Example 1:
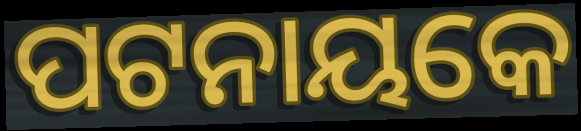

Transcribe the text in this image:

ପଟନାୟକେ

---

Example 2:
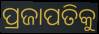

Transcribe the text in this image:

ପ୍ରଜାପତିକୁ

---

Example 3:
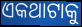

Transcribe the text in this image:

ଏକଥାଟାକୁ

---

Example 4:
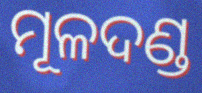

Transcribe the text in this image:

ମୂଳଦଣ୍ଡ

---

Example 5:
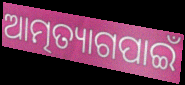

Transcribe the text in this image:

ଆତ୍ମତ୍ୟାଗପାଇଁ